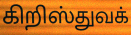
கிறிஸ்துவக்